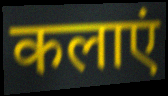
कलाएं